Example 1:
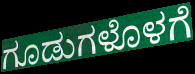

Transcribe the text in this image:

ಗೂಡುಗಳೊಳಗೆ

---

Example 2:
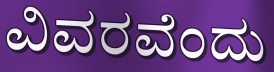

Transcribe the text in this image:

ವಿವರವೆಂದು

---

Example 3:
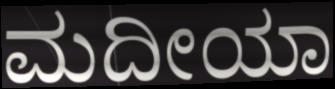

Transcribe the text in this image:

ಮದೀಯಾ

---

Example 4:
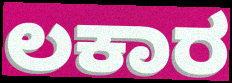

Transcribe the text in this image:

ಲಕಾರ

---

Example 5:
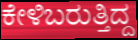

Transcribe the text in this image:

ಕೇಳಿಬರುತ್ತಿದ್ದ